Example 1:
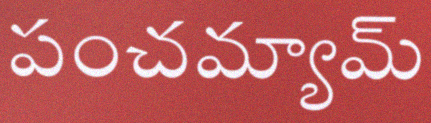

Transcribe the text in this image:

పంచమ్యామ్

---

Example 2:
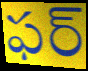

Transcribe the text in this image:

ఫర్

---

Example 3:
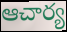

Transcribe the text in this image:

ఆచార్య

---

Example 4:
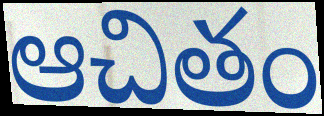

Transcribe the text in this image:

ఆచితం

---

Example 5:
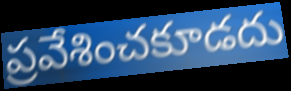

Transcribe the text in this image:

ప్రవేశించకూడదు